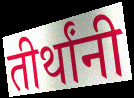
तीर्थांनी